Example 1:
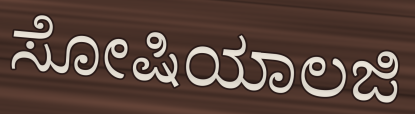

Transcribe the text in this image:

ಸೋಷಿಯಾಲಜಿ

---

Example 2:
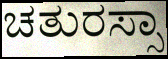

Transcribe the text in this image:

ಚತುರಸ್ಸಾ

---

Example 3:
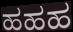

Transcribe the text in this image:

ಹಹಹ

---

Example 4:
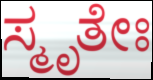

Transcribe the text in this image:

ಸ್ಮೃತೇಃ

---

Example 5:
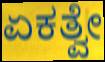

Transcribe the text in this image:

ಏಕತ್ವೇ